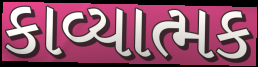
કાવ્યાત્મક